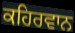
ਕਹਿਰਵਾਨ